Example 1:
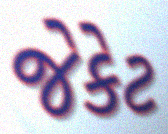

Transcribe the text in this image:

જેકેટ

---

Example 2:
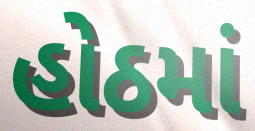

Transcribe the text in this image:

હોઠમાં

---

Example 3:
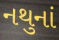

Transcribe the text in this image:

નથુનાં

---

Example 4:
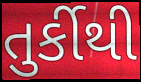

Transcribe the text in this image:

તુર્કીથી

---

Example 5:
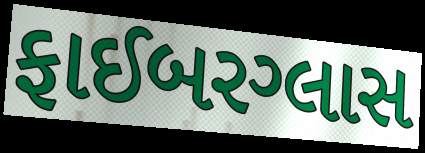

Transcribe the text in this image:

ફાઈબરગ્લાસ